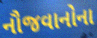
નૌજવાનોના